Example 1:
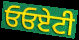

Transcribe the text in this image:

ਓਓਏਟੀ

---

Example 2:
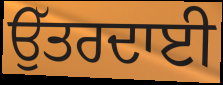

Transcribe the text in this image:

ਉੱਤਰਦਾਈ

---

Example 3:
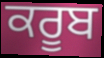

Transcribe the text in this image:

ਕਰੂਬ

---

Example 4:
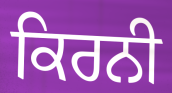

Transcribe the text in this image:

ਕਿਰਨੀ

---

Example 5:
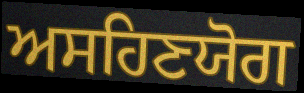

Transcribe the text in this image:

ਅਸਹਿਣਯੋਗ